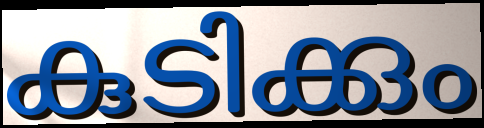
കുടിക്കും